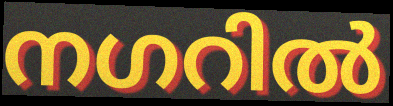
നഗറിൽ